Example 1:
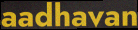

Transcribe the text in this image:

aadhavan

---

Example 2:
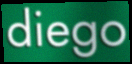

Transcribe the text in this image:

diego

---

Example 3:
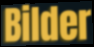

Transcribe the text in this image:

Bilder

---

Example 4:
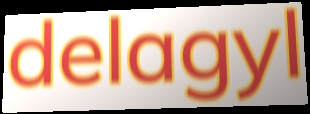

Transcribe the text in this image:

delagyl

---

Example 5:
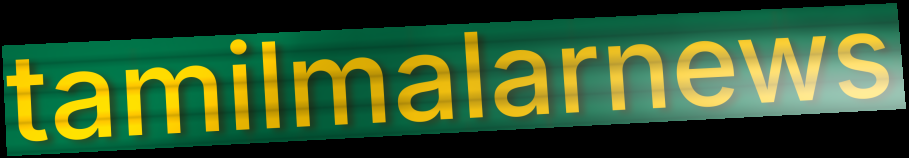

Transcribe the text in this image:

tamilmalarnews